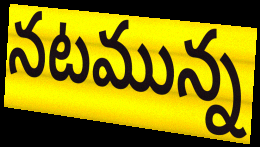
నటమున్న